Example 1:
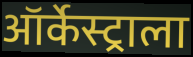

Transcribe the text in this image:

ऑर्केस्ट्राला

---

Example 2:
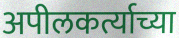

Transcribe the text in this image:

अपीलकर्त्याच्या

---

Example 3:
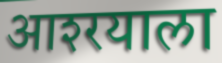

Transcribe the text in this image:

आश्रयाला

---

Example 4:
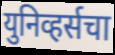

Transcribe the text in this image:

युनिव्हर्सचा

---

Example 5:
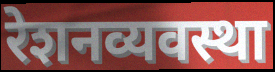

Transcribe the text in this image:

रेशनव्यवस्था